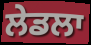
ਲੇਡਲਾ